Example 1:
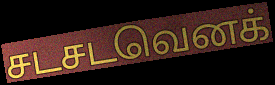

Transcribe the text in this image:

சடசடவெனக்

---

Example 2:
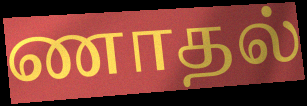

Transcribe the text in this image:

ணாதல்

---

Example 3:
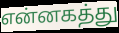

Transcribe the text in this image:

என்னகத்து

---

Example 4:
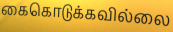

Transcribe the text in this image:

கைகொடுக்கவில்லை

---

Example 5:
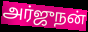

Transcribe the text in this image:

அர்ஜுநன்